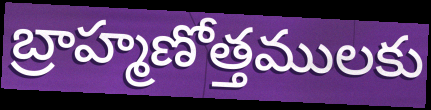
బ్రాహ్మణోత్తములకు